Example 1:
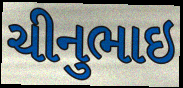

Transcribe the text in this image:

ચીનુભાઇ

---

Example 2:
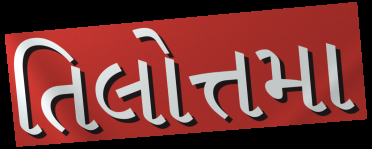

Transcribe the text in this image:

તિલોત્તમા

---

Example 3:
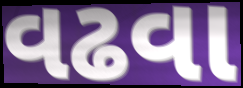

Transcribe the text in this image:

વઢવા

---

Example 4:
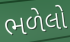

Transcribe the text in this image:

ભળેલો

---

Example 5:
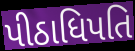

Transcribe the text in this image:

પીઠાધિપતિ